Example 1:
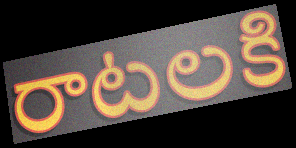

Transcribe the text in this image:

రాటలకి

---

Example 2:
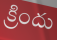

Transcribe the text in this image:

క్రిందు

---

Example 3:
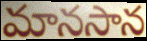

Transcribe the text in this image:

మానసాన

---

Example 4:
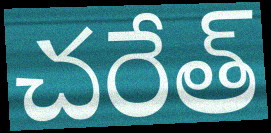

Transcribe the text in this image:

చరేత్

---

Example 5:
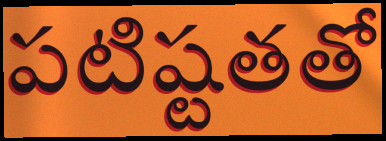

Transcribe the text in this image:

పటిష్టతతో